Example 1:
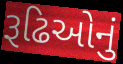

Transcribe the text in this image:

રૂઢિઓનું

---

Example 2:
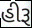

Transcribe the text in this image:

હીરૂ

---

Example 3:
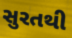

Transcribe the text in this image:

સુરતથી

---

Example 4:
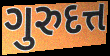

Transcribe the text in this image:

ગુરુદત્ત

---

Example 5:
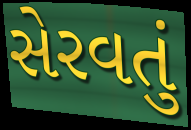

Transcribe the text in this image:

સેરવતું